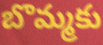
బొమ్మకు